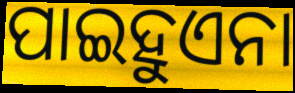
ପାଇହୁଏନା